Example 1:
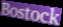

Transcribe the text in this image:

Bostock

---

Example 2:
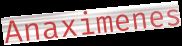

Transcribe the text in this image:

Anaximenes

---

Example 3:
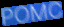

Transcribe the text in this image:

POMC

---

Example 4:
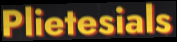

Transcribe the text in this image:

Plietesials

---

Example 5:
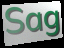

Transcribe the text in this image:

Sag